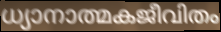
ധ്യാനാത്മകജീവിതം